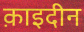
क़ाइदीन